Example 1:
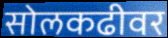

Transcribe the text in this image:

सोलकढीवर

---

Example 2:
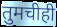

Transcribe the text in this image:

तुमचीही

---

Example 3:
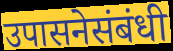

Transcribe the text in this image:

उपासनेसंबंधी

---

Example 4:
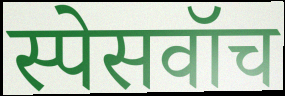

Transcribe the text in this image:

स्पेसवॉच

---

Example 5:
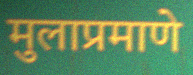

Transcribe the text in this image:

मुलाप्रमाणे